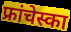
फ्रांचेस्का